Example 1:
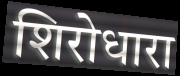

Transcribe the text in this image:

शिरोधारा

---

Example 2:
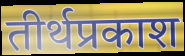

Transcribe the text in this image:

तीर्थप्रकाश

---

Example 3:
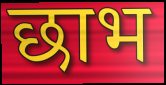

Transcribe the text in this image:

छाभ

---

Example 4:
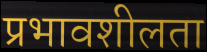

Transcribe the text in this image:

प्रभावशीलता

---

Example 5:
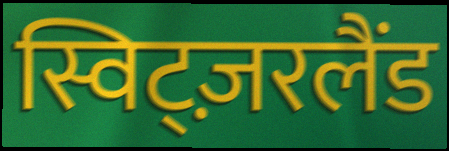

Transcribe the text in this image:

स्विट्ज़रलैंड